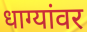
धाग्यांवर